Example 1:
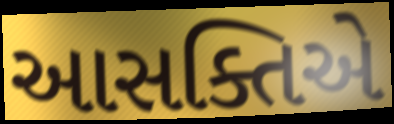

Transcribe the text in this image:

આસક્તિએ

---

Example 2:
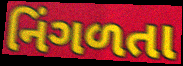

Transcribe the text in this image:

નિંગળતા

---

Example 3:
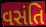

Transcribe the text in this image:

વસંતિ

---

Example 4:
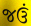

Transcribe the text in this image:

જઉં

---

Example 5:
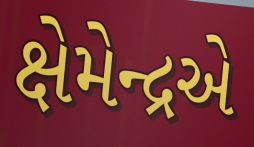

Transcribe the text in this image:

ક્ષેમેન્દ્રએ